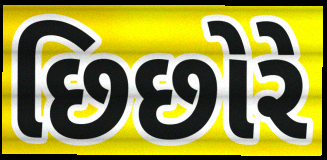
છિછોરે